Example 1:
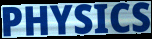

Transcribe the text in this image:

PHYSICS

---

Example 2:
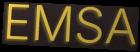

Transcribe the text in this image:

EMSA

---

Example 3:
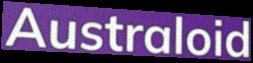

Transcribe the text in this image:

Australoid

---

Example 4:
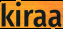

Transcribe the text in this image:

kiraa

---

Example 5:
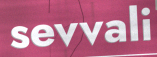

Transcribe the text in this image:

sevvali